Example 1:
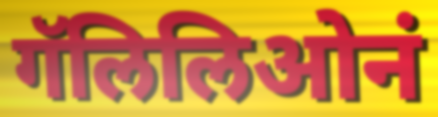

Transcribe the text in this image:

गॅलिलिओनं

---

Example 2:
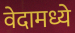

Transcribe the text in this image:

वेदामध्ये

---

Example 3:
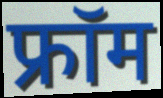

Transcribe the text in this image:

फ्रॉम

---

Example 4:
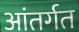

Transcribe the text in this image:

आंतर्गत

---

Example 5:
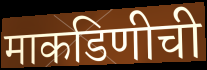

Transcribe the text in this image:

माकडिणीची